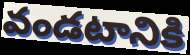
వండటానికి